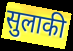
सुलाकी